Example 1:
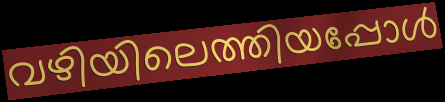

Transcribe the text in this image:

വഴിയിലെത്തിയപ്പോൾ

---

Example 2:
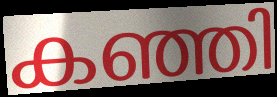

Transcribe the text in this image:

കഞ്ഞി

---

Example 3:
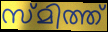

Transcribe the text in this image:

സ്മിത്ത്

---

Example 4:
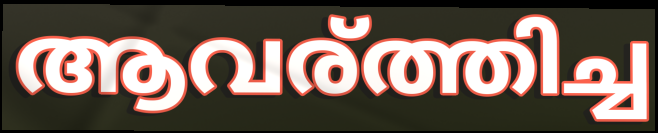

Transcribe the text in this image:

ആവര്ത്തിച്ച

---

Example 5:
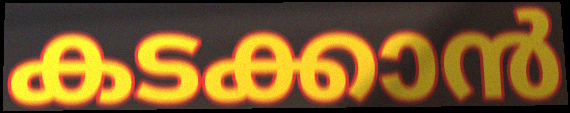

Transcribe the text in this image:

കടക്കാൻ